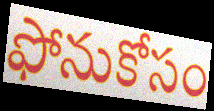
ఫోనుకోసం